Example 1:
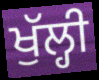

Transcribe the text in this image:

ਖੁੱਲ੍ਹੀ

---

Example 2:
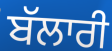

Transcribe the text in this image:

ਬੱਲਾਰੀ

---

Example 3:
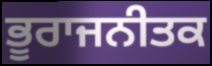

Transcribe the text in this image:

ਭੂਰਾਜਨੀਤਕ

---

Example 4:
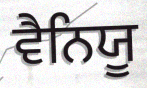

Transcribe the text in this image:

ਵੈਨਿਯੂ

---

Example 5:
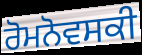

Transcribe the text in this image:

ਰੋਮਨੋਵਸਕੀ